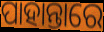
ପାହାନ୍ତାରେ